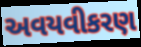
અવયવીકરણ